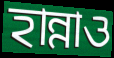
হান্নাও